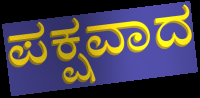
ಪಕ್ಷವಾದ